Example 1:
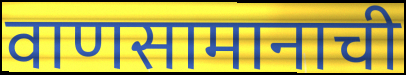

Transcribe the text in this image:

वाणसामानाची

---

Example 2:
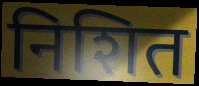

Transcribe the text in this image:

निशित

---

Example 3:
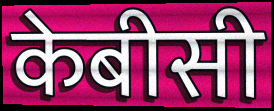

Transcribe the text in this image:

केबीसी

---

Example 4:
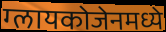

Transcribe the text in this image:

ग्लायकोजेनमध्ये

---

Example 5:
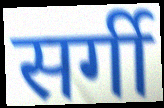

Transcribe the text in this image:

सर्गी